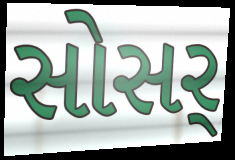
સોસર્